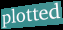
plotted